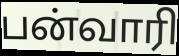
பன்வாரி